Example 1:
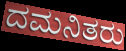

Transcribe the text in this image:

ದಮನಿತರು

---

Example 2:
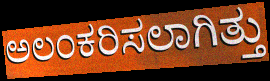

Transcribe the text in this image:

ಅಲಂಕರಿಸಲಾಗಿತ್ತು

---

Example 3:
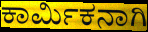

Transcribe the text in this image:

ಕಾರ್ಮಿಕನಾಗಿ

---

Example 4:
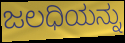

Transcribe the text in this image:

ಜಲಧಿಯನ್ನು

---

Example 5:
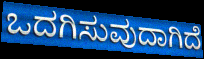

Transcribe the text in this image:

ಒದಗಿಸುವುದಾಗಿದೆ